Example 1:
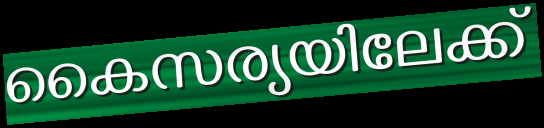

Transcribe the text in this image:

കൈസര്യയിലേക്ക്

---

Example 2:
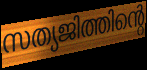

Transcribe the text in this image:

സത്യജിത്തിന്റെ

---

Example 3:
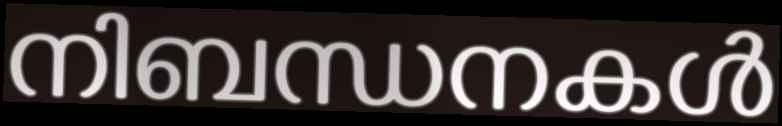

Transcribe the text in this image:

നിബന്ധനകൾ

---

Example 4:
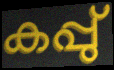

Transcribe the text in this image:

കപ്പു്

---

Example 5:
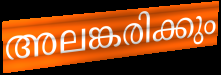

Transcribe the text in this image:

അലങ്കരിക്കും